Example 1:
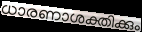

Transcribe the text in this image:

ധാരണാശക്തിക്കും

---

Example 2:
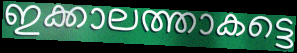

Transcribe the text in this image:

ഇക്കാലത്താകട്ടെ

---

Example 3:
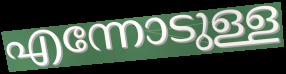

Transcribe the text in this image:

എന്നോടുള്ള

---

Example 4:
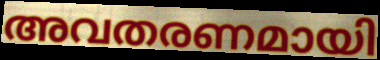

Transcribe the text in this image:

അവതരണമായി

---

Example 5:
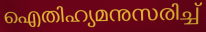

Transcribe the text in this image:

ഐതിഹ്യമനുസരിച്ച്